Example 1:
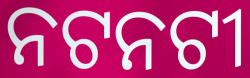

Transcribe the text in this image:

ନଟନଟୀ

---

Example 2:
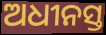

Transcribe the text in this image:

ଅଧୀନସ୍ତ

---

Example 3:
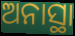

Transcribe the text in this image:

ଅନାସ୍ଥା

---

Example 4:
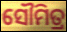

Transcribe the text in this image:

ସୌମିତ୍ର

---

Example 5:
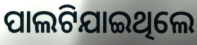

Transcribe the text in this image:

ପାଲଟିଯାଇଥିଲେ